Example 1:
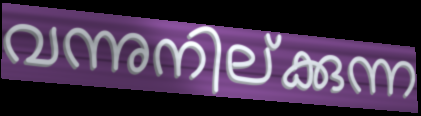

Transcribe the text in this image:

വന്നുനില്ക്കുന്ന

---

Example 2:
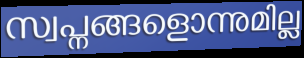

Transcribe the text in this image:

സ്വപ്നങ്ങളൊന്നുമില്ല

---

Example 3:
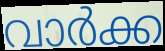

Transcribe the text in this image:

വാർക്ക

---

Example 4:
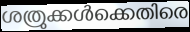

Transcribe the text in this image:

ശത്രുക്കൾക്കെതിരെ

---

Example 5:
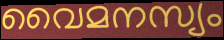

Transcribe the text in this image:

വൈമനസ്യം